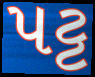
પટ્ટ